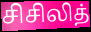
சிசிலித்